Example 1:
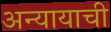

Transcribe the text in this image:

अन्यायाची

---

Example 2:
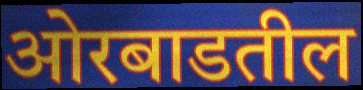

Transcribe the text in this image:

ओरबाडतील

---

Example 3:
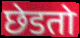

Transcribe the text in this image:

छेडतो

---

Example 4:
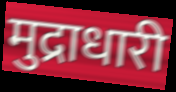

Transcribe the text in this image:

मुद्राधारी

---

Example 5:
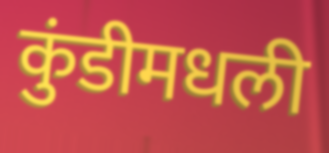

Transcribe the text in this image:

कुंडीमधली